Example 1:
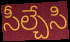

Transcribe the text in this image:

సీల్చేసి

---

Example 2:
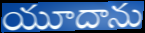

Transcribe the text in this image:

యూదాను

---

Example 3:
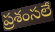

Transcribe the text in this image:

ప్రశంసలే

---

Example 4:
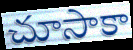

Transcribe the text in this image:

చూసాకా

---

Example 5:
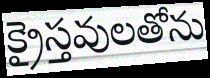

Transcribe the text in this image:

క్రైస్తవులతోను